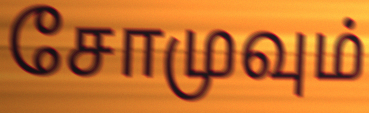
சோமுவும்